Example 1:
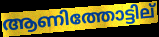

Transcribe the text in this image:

ആണിത്തോട്ടില്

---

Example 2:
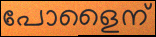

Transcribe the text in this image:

പോളൈന്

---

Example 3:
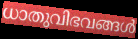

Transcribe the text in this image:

ധാതുവിഭവങ്ങൾ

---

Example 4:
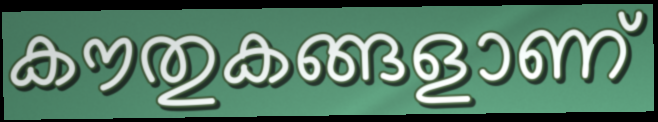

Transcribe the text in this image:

കൗതുകങ്ങളാണ്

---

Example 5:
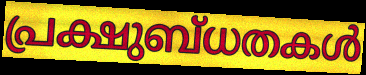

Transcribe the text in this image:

പ്രക്ഷുബ്ധതകൾ